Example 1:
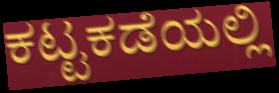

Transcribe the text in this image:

ಕಟ್ಟಕಡೆಯಲ್ಲಿ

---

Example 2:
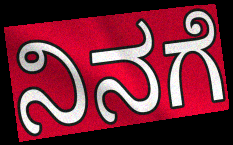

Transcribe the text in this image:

ನಿನಗೆ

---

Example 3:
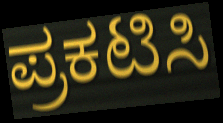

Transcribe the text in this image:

ಪ್ರಕಟಿಸಿ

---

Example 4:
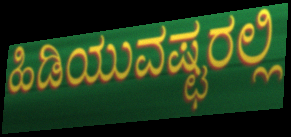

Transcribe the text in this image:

ಹಿಡಿಯುವಷ್ಟರಲ್ಲಿ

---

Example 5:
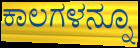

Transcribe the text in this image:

ಕಾಲಗಳನ್ನೂ